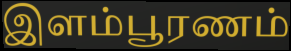
இளம்பூரணம்